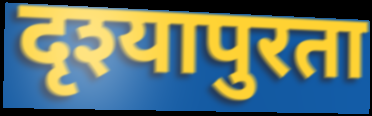
दृश्यापुरता